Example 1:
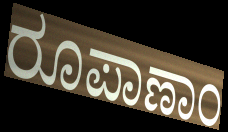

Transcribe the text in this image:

ರೂಪಾಣಾಂ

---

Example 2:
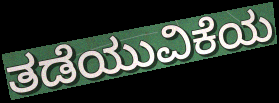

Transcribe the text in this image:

ತಡೆಯುವಿಕೆಯ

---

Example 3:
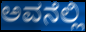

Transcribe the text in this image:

ಅವನೆಲ್ಲಿ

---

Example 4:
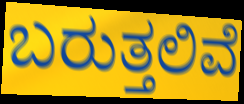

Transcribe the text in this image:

ಬರುತ್ತಲಿವೆ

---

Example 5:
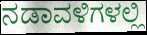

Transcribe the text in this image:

ನಡಾವಳಿಗಳಲ್ಲಿ